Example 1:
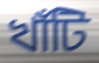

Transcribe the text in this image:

খাঁটি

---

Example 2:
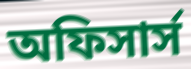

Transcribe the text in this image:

অফিসার্স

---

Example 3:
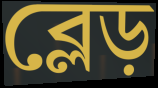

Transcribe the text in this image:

ব্লেড়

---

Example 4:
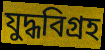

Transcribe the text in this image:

যুদ্ধবিগ্রহ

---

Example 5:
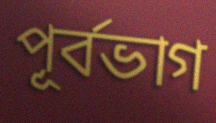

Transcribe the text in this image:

পূর্বভাগ